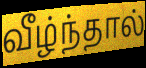
வீழ்ந்தால்